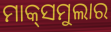
ମାକ୍‌ସମୁଲାର